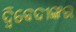
ଦ୍ଵିବେଦୀଙ୍କର